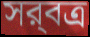
সর্‍বত্র